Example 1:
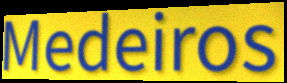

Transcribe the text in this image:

Medeiros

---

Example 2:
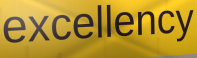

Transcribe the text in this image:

excellency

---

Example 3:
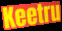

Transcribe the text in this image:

Keetru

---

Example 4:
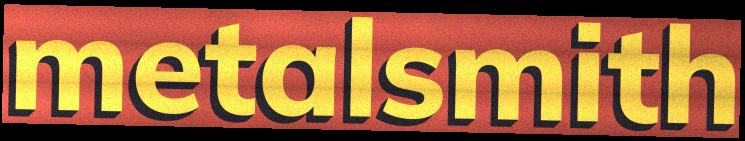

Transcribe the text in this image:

metalsmith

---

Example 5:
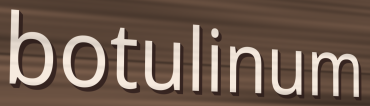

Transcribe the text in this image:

botulinum